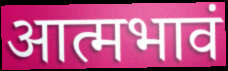
आत्मभावं